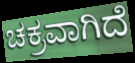
ಚಕ್ರವಾಗಿದೆ